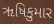
ૠષિકુમાર